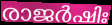
രാജർഷിഃ